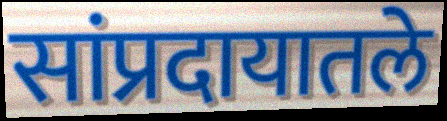
सांप्रदायातले